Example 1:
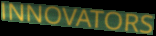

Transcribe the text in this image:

INNOVATORS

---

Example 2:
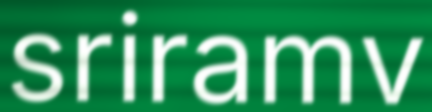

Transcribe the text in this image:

sriramv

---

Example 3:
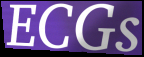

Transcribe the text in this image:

ECGs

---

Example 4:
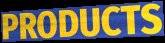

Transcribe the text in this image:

PRODUCTS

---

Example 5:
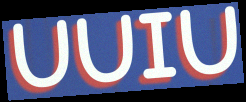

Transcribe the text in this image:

UUIU